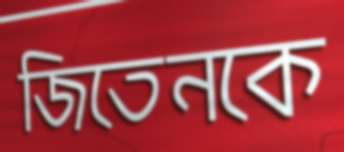
জিতেনকে